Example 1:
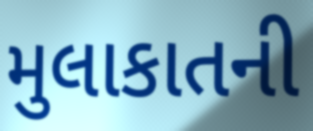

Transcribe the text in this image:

મુલાકાતની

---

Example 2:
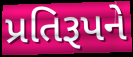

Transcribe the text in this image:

પ્રતિરૂપને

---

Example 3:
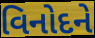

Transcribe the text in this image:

વિનોદને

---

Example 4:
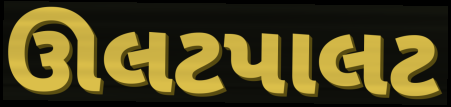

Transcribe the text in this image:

ઊલટપાલટ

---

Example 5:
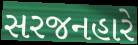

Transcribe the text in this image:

સરજનહારે